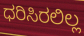
ಧರಿಸಿರಲಿಲ್ಲ